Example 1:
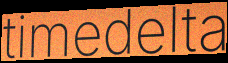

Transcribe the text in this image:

timedelta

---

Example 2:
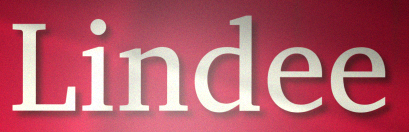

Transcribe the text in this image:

Lindee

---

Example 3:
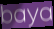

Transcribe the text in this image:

baya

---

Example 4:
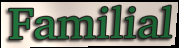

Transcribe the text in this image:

Familial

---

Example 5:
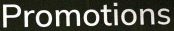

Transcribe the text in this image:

Promotions